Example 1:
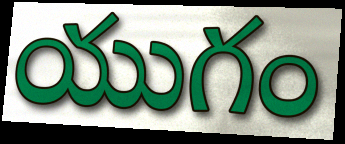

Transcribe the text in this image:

యుగం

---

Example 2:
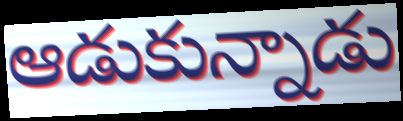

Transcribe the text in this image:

ఆడుకున్నాడు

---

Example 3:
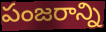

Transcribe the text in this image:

పంజరాన్ని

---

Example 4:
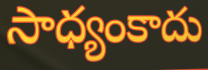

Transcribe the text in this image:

సాధ్యంకాదు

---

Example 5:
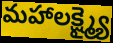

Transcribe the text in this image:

మహాలక్ష్మ్యై